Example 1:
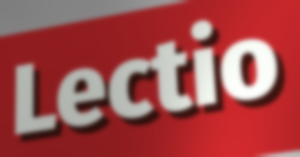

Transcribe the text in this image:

Lectio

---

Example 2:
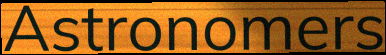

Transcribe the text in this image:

Astronomers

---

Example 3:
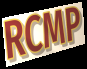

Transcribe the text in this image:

RCMP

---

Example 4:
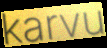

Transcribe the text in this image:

karvu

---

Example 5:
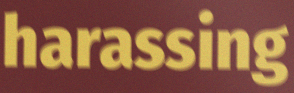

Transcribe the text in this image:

harassing